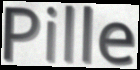
Pille